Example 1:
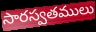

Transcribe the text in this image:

సారస్వతములు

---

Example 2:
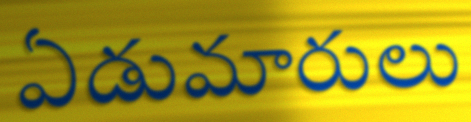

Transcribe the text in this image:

ఏడుమారులు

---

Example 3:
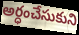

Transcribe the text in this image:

అర్ధంచేసుకుని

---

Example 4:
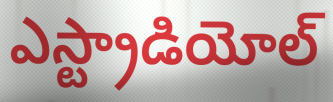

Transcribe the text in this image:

ఎస్ట్రాడియోల్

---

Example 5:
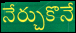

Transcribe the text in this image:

నేర్చుకొనే